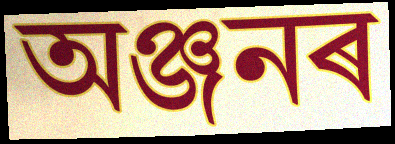
অঞ্জনৰ